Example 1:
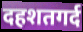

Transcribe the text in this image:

दहशतगर्द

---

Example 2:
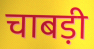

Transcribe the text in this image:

चाबड़ी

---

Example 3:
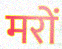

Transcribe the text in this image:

मरों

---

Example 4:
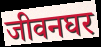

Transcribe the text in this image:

जीवनघर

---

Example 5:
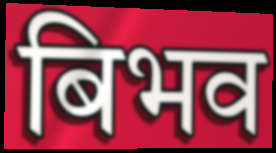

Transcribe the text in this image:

बिभव